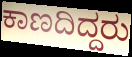
ಕಾಣದಿದ್ದರು